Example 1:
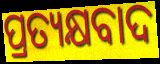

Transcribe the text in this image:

ପ୍ରତ୍ୟକ୍ଷବାଦ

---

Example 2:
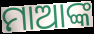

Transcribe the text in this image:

ମାଆଙ୍କ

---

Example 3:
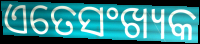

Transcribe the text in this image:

ଏତେସଂଖ୍ୟକ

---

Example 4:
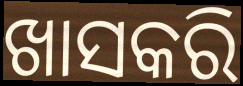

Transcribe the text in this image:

ଖାସକରି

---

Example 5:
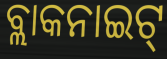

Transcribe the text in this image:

ବ୍ଲାକନାଇଟ୍